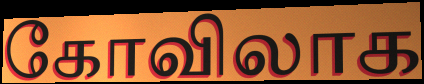
கோவிலாக